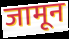
जामून